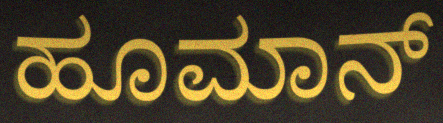
ಹೂಮಾನ್